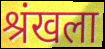
श्रंखला